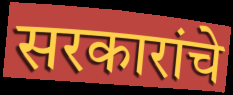
सरकारांचे